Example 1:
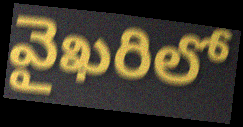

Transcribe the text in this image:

వైఖరిలో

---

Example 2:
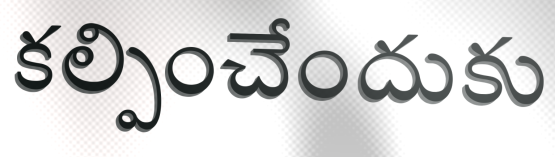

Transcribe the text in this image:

కల్పించేందుకు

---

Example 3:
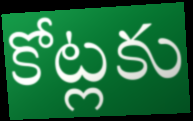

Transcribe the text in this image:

కోట్లకు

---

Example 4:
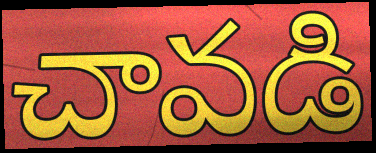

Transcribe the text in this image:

చావడి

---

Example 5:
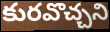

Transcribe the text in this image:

కురవొచ్చని